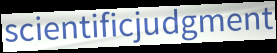
scientificjudgment